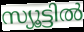
സ്യൂട്ടിൽ